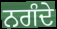
ਨਗੰਦੇ